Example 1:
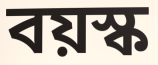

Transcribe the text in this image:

বয়স্ক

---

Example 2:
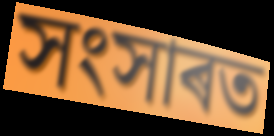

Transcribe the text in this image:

সংসাৰত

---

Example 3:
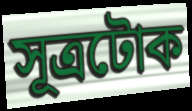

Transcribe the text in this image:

সূত্ৰটোক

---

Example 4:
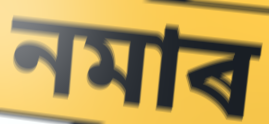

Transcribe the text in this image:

নমাৰ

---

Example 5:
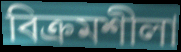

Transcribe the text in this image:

বিক্ৰমশীলা